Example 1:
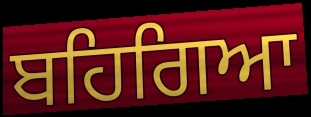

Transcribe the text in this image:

ਬਹਿਗਿਆ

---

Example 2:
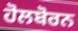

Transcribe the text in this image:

ਹੋਲਬੋਰਨ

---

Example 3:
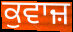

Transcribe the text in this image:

ਕੁਵਾਜ਼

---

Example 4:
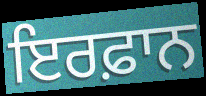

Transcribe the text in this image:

ਇਰਫ਼ਾਨ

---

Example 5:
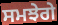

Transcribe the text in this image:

ਸਮਝੇਗੇ